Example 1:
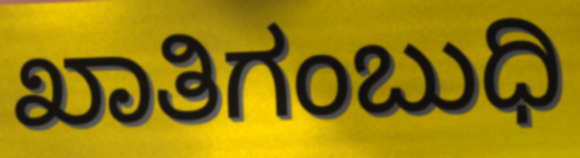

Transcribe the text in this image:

ಖಾತಿಗಂಬುಧಿ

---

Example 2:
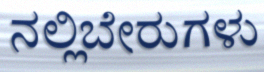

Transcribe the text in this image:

ನಲ್ಲಿಬೇರುಗಳು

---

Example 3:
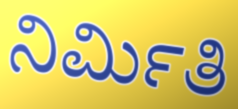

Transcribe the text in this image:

ನಿರ್ಮಿತಿ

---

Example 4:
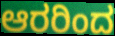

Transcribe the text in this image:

ಆರರಿಂದ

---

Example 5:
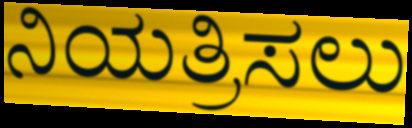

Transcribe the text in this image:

ನಿಯತ್ರಿಸಲು